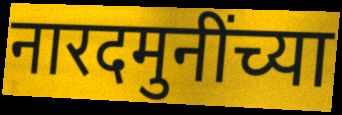
नारदमुनींच्या